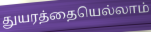
துயரத்தையெல்லாம்